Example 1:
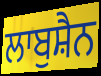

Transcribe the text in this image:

ਲਾਬੁਸ਼ੈਨ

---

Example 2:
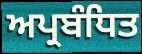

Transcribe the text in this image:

ਅਪ੍ਰਬੰਧਿਤ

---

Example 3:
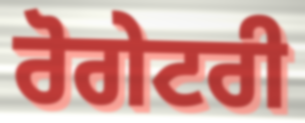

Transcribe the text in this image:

ਰੋਗੇਟਰੀ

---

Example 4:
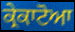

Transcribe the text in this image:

ਕ੍ਰੇਕਾਟੋਆ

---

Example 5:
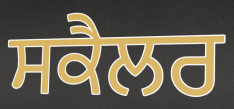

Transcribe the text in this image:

ਸਕੈਲਰ